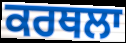
ਕਰਥਲਾ